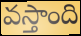
వస్తాంది